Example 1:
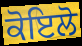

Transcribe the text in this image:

ਕੋਇਲੋ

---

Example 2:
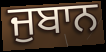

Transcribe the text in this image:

ਜੁਬਾਨ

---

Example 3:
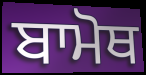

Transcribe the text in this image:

ਬਾਮੋਥ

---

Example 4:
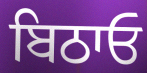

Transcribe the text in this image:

ਬਿਠਾਓ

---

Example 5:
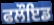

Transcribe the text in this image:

ਫਲੌਇਡ